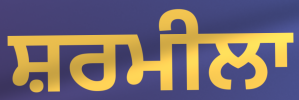
ਸ਼ਰਮੀਲਾ